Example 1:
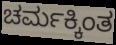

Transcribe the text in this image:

ಚರ್ಮಕ್ಕಿಂತ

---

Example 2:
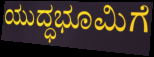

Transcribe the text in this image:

ಯುದ್ಧಭೂಮಿಗೆ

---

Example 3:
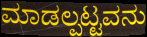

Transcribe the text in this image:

ಮಾಡಲ್ಪಟ್ಟವನು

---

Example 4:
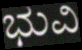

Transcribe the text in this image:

ಭುವಿ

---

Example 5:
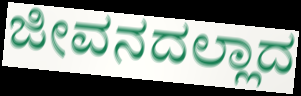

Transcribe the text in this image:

ಜೀವನದಲ್ಲಾದ